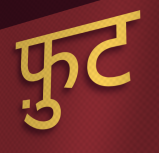
फ़ुट